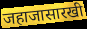
जहाजासारखी